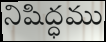
నిషిద్ధము